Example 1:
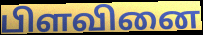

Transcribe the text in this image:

பிளவினை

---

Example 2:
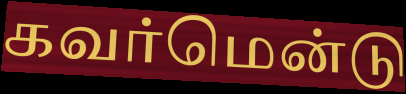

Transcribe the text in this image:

கவர்மென்டு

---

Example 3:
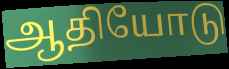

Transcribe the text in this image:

ஆதியோடு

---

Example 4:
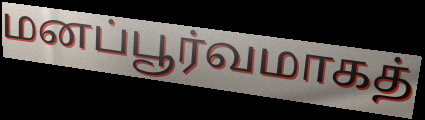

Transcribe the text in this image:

மனப்பூர்வமாகத்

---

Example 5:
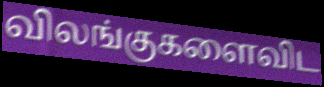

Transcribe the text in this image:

விலங்குகளைவிட